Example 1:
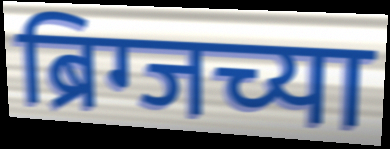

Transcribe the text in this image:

ब्रिग्जच्या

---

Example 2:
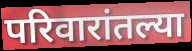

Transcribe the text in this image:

परिवारांतल्या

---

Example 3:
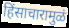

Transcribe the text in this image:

हिंसाचारामुळं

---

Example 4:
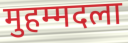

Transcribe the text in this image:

मुहम्मदला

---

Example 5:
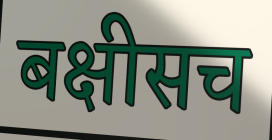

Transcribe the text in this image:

बक्षीसच